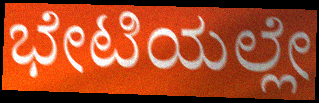
ಭೇಟಿಯಲ್ಲೇ